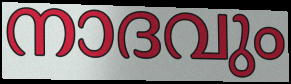
നാദവും